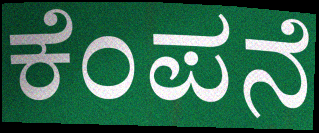
ಕೆಂಪನೆ